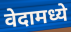
वेदामध्ये